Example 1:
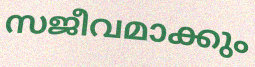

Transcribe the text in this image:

സജീവമാക്കും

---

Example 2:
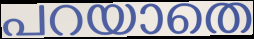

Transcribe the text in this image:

പറയാതെ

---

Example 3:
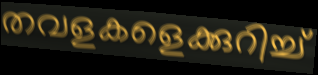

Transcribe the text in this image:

തവളകളെക്കുറിച്ച്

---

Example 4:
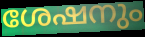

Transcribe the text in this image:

ശേഷനും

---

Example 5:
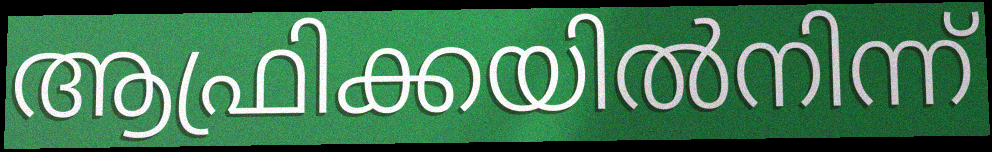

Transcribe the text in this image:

ആഫ്രിക്കയിൽനിന്ന്